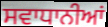
ਸਵਾਧਾਨੀਆਂ